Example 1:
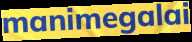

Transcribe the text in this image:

manimegalai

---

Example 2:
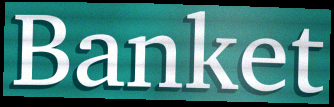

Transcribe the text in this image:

Banket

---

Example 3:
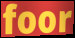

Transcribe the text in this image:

foor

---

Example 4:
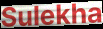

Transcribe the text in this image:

Sulekha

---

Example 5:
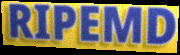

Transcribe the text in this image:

RIPEMD